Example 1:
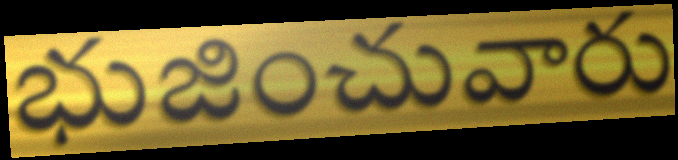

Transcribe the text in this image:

భుజించువారు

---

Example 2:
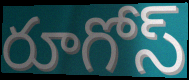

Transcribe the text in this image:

రూగోస్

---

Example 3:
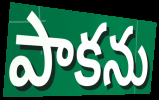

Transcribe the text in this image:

పాకను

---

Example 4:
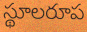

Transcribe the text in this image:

స్థూలరూప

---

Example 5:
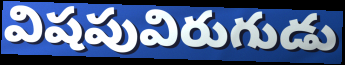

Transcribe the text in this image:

విషపువిరుగుడు